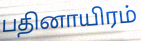
பதினாயிரம்